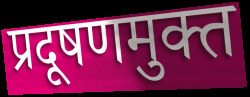
प्रदूषणमुक्त